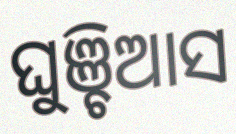
ଘୁଞ୍ଚିଆସ